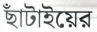
ছাঁটাইয়ের